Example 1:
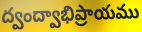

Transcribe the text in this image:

ద్వంద్వాభిప్రాయము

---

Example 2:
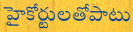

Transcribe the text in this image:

హైకోర్టులతోపాటు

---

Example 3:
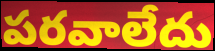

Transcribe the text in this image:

పరవాలేదు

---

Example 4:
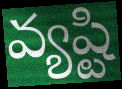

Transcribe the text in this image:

వ్యష్టి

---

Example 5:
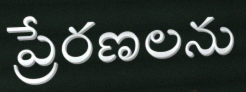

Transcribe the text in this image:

ప్రేరణలను